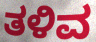
ತಳಿವ